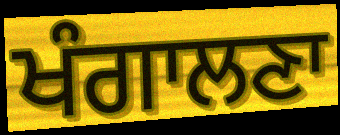
ਖੰਗਾਲਣਾ